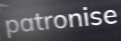
patronise